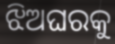
ଝିଅଘରକୁ